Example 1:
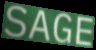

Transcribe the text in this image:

SAGE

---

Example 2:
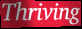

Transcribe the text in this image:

Thriving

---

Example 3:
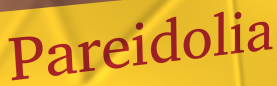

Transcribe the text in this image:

Pareidolia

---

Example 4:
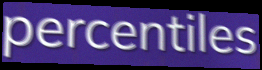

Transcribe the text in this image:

percentiles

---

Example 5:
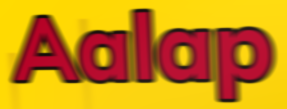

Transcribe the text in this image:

Aalap